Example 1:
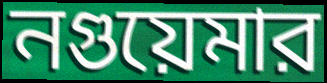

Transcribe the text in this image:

নগুয়েমার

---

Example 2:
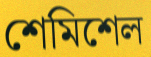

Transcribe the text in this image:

শেমিশেল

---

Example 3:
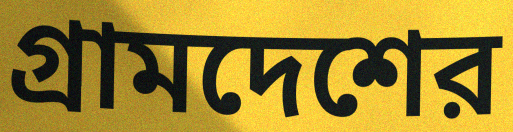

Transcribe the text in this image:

গ্রামদেশের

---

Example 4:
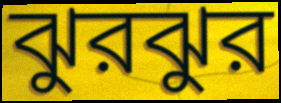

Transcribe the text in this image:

ঝুরঝুর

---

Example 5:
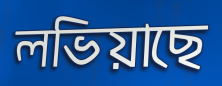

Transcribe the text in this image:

লভিয়াছে